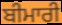
ਬੀਮਾਰੀ